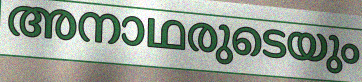
അനാഥരുടെയും